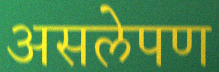
असलेपण